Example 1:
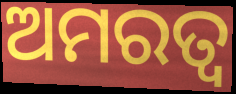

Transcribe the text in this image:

ଅମରତ୍ଵ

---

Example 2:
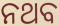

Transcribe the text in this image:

ନଥବ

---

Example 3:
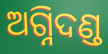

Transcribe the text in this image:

ଅଗ୍ନିଦଣ୍ଡ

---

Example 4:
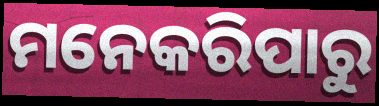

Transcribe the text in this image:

ମନେକରିପାରୁ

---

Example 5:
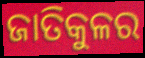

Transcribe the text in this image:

ଜାତିକୁଳର